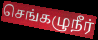
செங்கழுநீர்